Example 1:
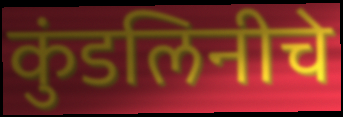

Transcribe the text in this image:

कुंडलिनीचे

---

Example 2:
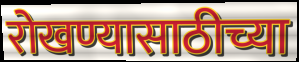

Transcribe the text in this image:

रोखण्यासाठीच्या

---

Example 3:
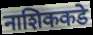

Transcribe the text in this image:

नाशिककडे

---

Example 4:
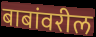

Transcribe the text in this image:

बाबांवरील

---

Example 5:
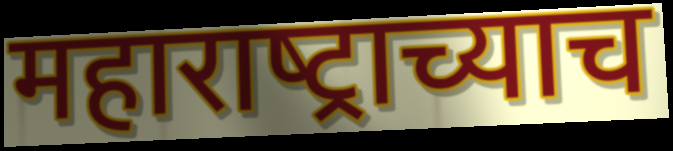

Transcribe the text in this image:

महाराष्ट्राच्याच